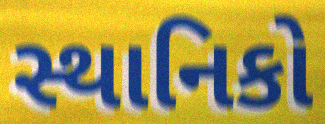
સ્થાનિકો